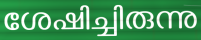
ശേഷിച്ചിരുന്നു